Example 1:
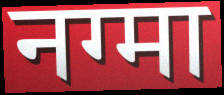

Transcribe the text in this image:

नग्मा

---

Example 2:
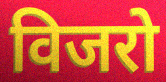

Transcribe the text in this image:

विजरो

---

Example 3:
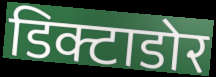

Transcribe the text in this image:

डिक्टाडोर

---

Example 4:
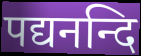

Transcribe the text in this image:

पद्यनन्दि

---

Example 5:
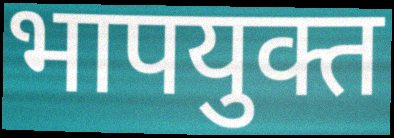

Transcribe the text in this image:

भापयुक्त